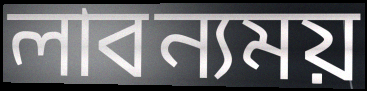
লাবন্যময়